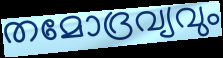
തമോദ്രവ്യവും